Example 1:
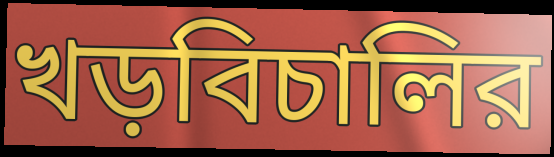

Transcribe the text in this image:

খড়বিচালির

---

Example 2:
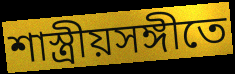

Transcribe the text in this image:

শাস্ত্রীয়সঙ্গীতে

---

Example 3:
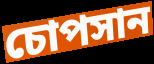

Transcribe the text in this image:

চোপসান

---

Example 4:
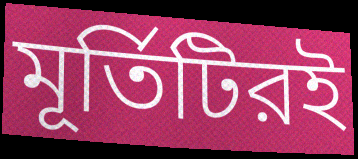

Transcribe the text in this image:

মূর্তিটিরই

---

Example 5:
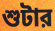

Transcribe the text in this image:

শুটার